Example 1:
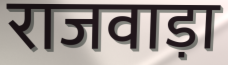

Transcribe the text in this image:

राजवाड़ा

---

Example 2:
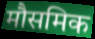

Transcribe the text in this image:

मौसमिक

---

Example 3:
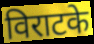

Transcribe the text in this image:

विराटके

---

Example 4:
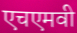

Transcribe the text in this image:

एचएमवी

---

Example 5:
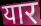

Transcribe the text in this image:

यार